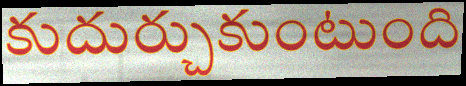
కుదుర్చుకుంటుంది